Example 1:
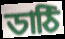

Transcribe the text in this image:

ডাঠি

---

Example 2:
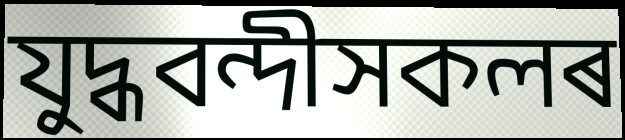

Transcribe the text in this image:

যুদ্ধবন্দীসকলৰ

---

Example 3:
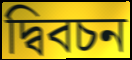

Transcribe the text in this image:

দ্বিবচন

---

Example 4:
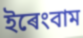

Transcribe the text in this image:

ইৰেংবাম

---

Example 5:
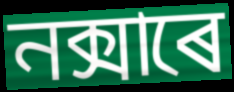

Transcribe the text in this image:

নক্সাৰে